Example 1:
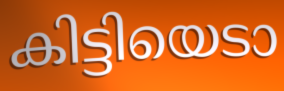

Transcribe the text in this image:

കിട്ടിയെടാ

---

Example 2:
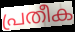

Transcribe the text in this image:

പ്രതീക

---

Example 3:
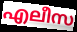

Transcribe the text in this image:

എലീസ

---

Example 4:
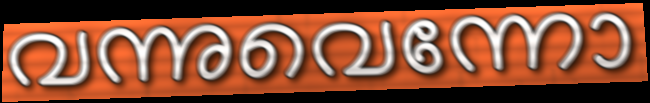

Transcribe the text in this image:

വന്നുവെന്നോ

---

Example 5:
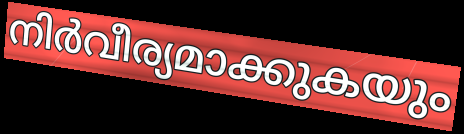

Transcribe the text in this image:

നിർവീര്യമാക്കുകയും